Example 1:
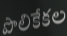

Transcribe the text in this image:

పొలికేకల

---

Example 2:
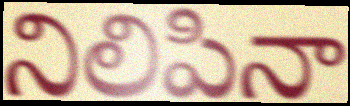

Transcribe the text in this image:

నిలిపినా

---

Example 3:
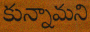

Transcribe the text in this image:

కున్నామని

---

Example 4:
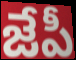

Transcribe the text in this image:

జేపీ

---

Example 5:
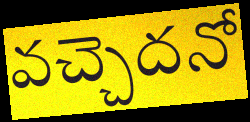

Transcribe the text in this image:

వచ్చెదనో